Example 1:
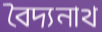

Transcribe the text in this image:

বৈদ্যনাথ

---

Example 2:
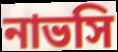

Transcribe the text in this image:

নাভসি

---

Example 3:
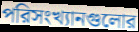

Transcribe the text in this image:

পরিসংখ্যানগুলোর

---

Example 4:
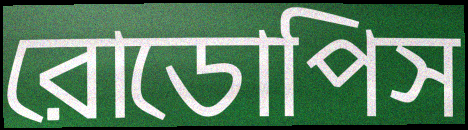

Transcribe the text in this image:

রোডোপিস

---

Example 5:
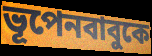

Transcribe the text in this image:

ভূপেনবাবুকে